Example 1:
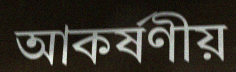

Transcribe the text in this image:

আকৰ্ষণীয়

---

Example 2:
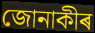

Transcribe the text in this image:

জোনাকীৰ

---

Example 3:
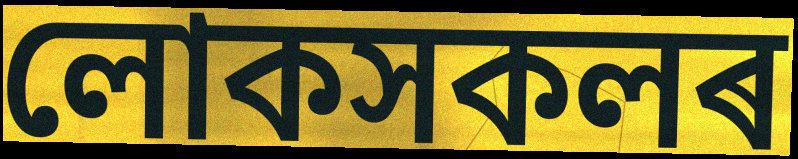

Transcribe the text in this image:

লোকসকলৰ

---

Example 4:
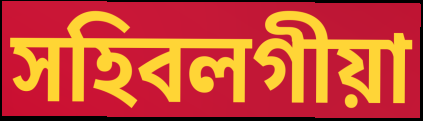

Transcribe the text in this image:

সহিবলগীয়া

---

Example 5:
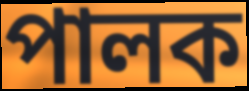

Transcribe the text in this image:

পালক